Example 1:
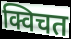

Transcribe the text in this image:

क्विचत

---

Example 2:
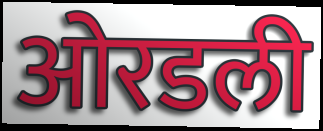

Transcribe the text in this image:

ओरडली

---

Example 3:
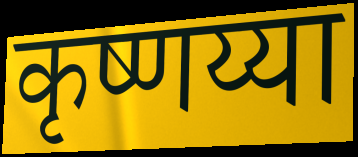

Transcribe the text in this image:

कृष्णय्या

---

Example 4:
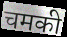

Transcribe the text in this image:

चमकी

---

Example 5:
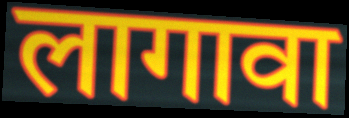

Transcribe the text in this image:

लागावा